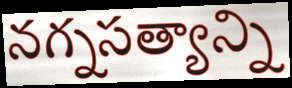
నగ్నసత్యాన్ని